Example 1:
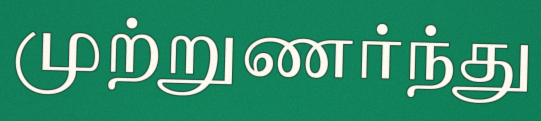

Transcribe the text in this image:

முற்றுணர்ந்து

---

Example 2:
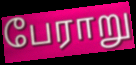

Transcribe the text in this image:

பேராறு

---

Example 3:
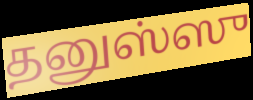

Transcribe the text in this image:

தனுஸ்ஸு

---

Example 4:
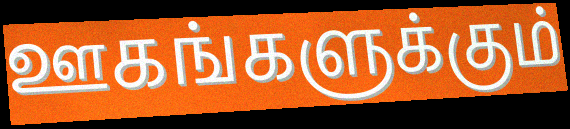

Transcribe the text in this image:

ஊகங்களுக்கும்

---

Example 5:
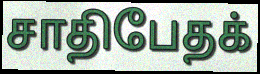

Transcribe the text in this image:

சாதிபேதக்